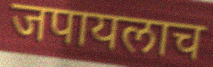
जपायलाच